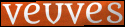
veuves